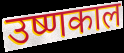
उष्णकाल